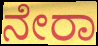
ನೇರಾ